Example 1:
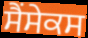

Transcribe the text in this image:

ਸੈਂਸੇਕਸ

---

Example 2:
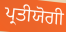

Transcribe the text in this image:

ਪ੍ਰਤੀਯੋਗੀ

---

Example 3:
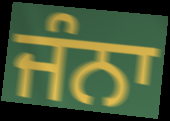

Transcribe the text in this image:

ਜੰਨਾ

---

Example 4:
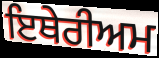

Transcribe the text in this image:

ਇਥੇਰੀਅਮ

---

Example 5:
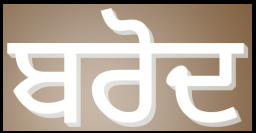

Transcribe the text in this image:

ਬਰੋਦ